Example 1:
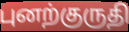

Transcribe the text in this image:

புனற்குருதி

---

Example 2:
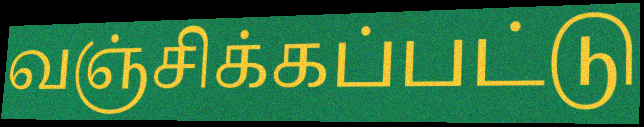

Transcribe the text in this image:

வஞ்சிக்கப்பட்டு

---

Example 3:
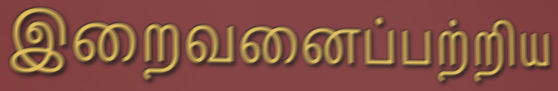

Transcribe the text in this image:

இறைவனைப்பற்றிய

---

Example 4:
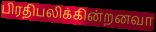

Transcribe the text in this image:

பிரதிபலிக்கின்றனவா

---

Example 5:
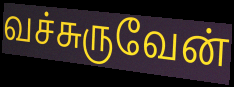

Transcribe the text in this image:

வச்சுருவேன்